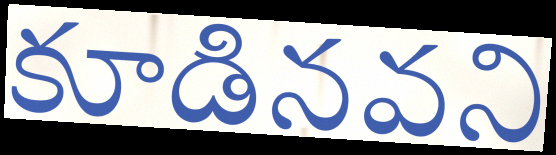
కూడినవని